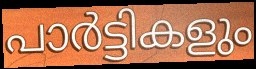
പാർട്ടികളും